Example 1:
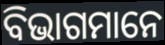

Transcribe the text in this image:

ବିଭାଗମାନେ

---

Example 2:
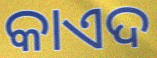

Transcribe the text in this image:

କାଏଦ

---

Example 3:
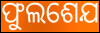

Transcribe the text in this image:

ଫୁଲଶେଯ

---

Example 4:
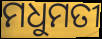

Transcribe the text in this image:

ମଧୁମତୀ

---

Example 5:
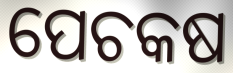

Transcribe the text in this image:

ପେଚକଷ